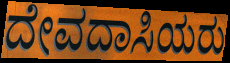
ದೇವದಾಸಿಯರು